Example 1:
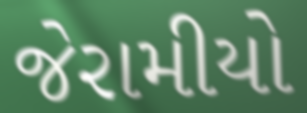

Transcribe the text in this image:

જેરામીયો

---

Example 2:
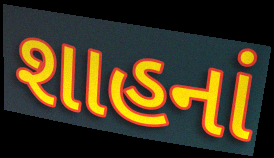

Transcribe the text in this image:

શાહનાં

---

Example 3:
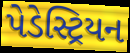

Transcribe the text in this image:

પેડેસ્ટ્રિયન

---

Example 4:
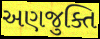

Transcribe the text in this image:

અણજુક્તિ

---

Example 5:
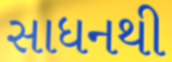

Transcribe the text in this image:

સાધનથી